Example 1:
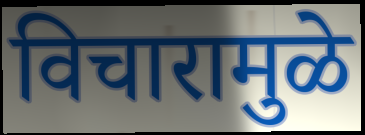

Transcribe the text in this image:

विचारामुळे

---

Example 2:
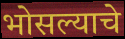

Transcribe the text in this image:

भोसल्याचे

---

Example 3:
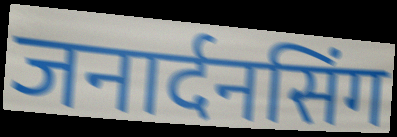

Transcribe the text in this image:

जनार्दनसिंग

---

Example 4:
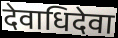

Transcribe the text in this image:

देवाधिदेवा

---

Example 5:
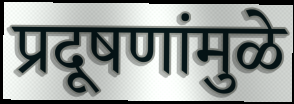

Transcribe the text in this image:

प्रदूषणांमुळे